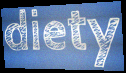
diety